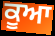
ਕੂਆ